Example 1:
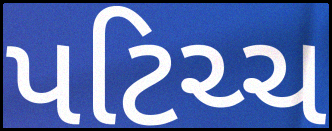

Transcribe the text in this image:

પટિચ્ચ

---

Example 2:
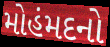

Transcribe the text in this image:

મોહંમદનો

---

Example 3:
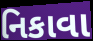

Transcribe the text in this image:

નિકાવા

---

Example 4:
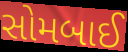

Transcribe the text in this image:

સોમબાઈ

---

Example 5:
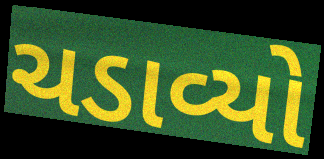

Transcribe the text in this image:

ચડાવ્યો